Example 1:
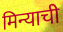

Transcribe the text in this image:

मिन्याची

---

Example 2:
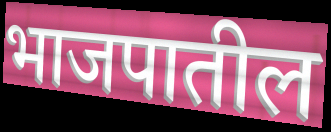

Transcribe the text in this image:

भाजपातील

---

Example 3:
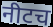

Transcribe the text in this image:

नीटच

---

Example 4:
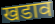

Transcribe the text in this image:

खडाव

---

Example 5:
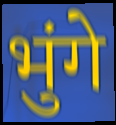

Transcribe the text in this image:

भुंगे